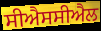
ਸੀਐਸਸੀਐਲ